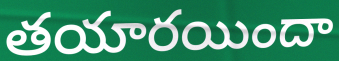
తయారయిందా